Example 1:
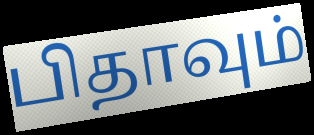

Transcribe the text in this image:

பிதாவும்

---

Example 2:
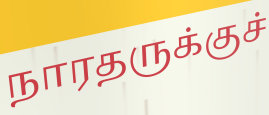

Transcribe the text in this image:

நாரதருக்குச்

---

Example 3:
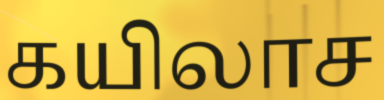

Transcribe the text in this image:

கயிலாச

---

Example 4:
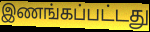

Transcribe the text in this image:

இணங்கப்பட்டது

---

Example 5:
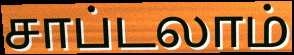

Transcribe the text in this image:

சாப்டலாம்